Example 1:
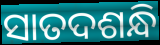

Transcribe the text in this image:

ସାତଦଶନ୍ଧି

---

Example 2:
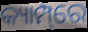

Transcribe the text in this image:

କ୍ୟାମ୍ପ୍‌ରେ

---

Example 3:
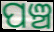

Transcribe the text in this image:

ପଞ୍ଚ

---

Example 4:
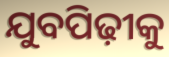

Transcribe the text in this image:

ଯୁବପିଢ଼ୀକୁ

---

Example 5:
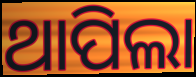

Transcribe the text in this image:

ଥାପିଲା